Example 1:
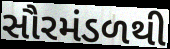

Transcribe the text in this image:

સૌરમંડળથી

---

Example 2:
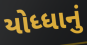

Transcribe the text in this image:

યોધ્ધાનું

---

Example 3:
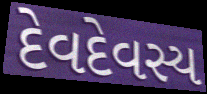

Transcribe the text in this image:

દેવદેવસ્ય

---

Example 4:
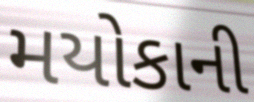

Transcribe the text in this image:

મયોકાની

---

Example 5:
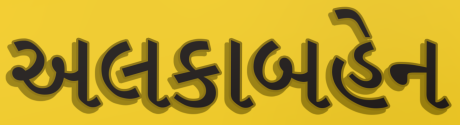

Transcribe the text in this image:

અલકાબહેન